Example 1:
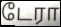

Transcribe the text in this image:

டேரா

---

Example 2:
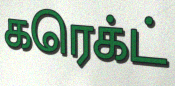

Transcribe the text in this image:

கரெக்ட்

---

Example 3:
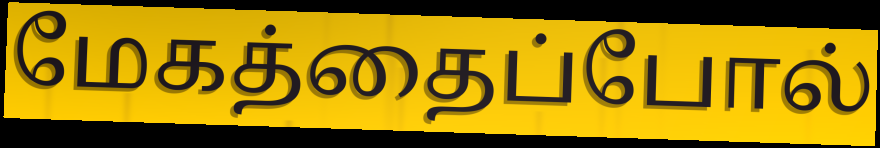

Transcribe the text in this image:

மேகத்தைப்போல்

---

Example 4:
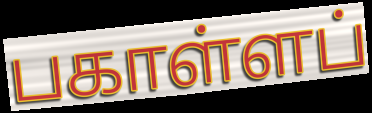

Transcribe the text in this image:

பகாள்ளப்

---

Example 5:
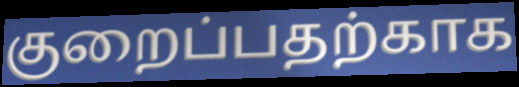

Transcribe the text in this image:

குறைப்பதற்காக